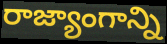
రాజ్యాంగాన్ని